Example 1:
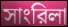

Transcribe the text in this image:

সাংরিলা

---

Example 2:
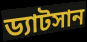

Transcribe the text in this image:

ড্যাটসান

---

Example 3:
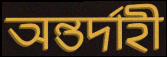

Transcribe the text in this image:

অন্তর্দাহী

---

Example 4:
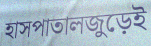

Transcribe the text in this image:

হাসপাতালজুড়েই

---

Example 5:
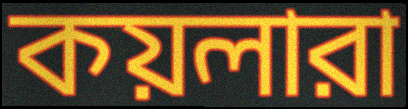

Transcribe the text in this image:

কয়লারা